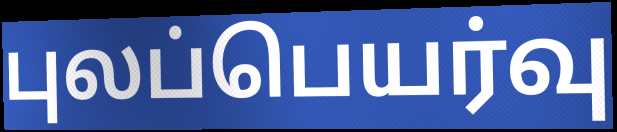
புலப்பெயர்வு